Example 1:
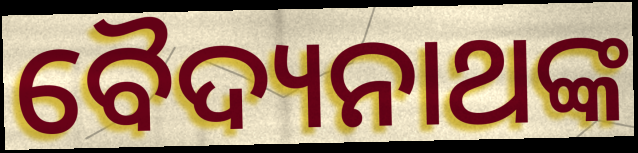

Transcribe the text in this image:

ବୈଦ୍ୟନାଥଙ୍କ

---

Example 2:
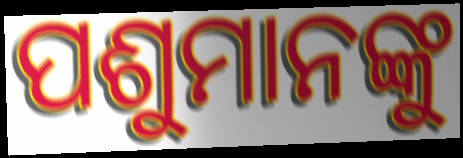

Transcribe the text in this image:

ପଶୁମାନଙ୍କୁ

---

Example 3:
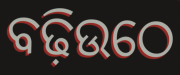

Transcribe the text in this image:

ବଢ଼ିଉଠେ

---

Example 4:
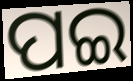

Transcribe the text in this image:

ପଇ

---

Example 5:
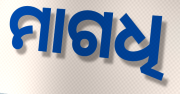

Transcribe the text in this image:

ମାଗଧି